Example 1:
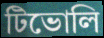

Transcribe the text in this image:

টিভোলি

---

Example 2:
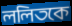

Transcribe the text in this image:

ললিতকে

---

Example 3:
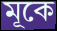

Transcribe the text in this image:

মূকে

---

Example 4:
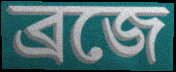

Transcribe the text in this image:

ব্রজে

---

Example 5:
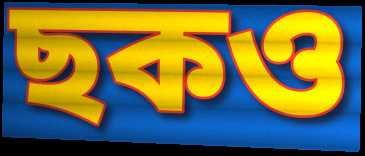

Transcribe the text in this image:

ছকও